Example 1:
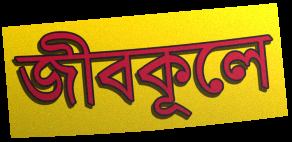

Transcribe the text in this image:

জীবকূলে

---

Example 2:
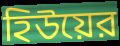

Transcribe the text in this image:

হিউয়ের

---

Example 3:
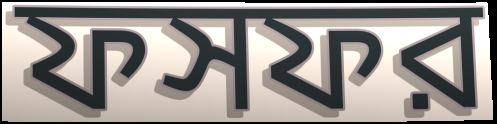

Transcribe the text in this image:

ফসফর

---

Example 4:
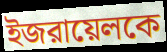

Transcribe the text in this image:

ইজরায়েলকে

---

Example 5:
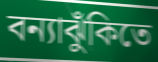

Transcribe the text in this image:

বন্যাঝুঁকিতে